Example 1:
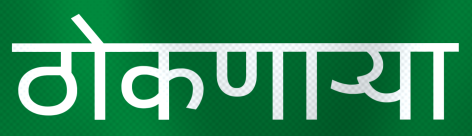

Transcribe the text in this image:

ठोकणाऱ्या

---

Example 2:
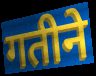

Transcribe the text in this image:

गतीने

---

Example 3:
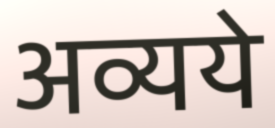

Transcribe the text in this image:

अव्यये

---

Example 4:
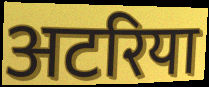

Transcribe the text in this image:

अटरिया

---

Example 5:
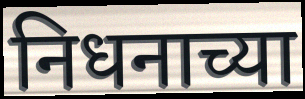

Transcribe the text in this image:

निधनाच्या